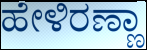
ಹೇಳಿರಣ್ಣಾ